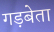
गड़बेता